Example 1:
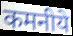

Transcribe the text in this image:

कमनीये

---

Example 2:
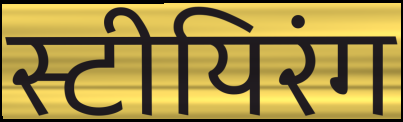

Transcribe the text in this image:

स्टीयिरंग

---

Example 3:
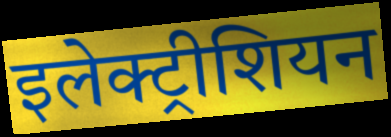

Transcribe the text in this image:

इलेक्‍ट्रीशियन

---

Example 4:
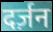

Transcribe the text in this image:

दर्ज़न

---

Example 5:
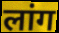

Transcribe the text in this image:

लांग